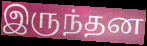
இருந்தன